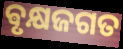
ଵୃକ୍ଷଜଗତ